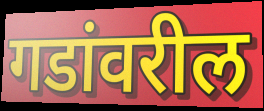
गडांवरील